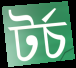
টৰ্চ